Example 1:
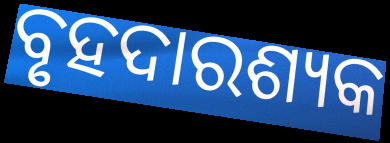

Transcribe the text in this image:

ବୃହଦାରଶ୍ୟକ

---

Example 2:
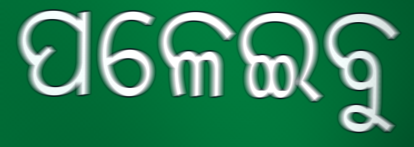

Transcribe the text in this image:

ପଳେଇବୁ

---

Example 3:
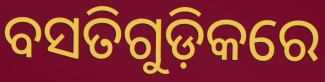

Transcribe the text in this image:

ବସତିଗୁଡ଼ିକରେ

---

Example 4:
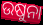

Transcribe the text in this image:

ଉଷୁନା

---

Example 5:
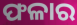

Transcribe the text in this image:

ଫଳାର